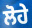
ਲੋਹੇ